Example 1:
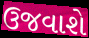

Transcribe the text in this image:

ઉજવાશે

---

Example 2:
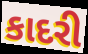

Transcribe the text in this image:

કાદરી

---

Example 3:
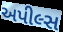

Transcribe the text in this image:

અપીલ્સ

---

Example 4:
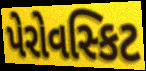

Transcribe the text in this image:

પેરોવસ્કિટ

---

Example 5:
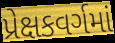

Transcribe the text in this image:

પ્રેક્ષકવર્ગમાં